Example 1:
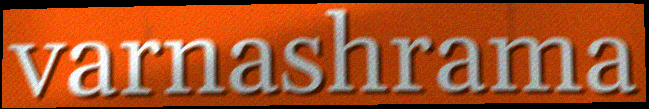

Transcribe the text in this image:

varnashrama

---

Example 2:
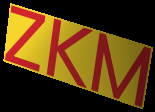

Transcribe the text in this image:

ZKM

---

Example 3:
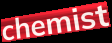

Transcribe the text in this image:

chemist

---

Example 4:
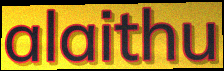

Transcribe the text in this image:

alaithu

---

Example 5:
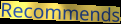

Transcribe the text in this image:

Recommends